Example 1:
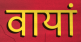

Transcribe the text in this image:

वायां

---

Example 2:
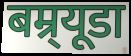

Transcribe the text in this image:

बम्र्यूडा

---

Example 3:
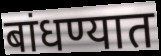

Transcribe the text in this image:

बांधण्यात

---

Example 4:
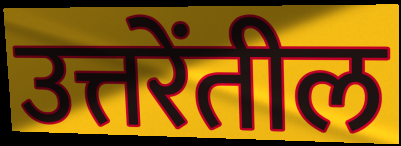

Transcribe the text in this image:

उत्तरेंतील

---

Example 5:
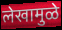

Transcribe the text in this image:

लेखामुळे